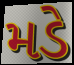
મડે